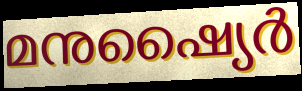
മനുഷ്യൈർ